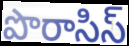
పొరాసిస్